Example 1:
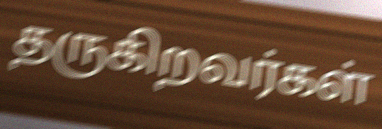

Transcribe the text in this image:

தருகிறவர்கள்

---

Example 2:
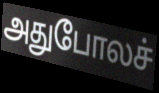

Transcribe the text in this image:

அதுபோலச்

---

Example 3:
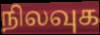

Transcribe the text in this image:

நிலவுக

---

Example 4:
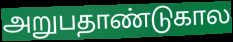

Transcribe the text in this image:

அறுபதாண்டுகால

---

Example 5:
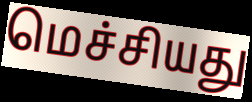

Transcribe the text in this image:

மெச்சியது